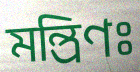
মন্ত্রিণঃ